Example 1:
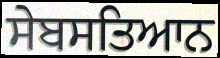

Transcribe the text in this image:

ਸੇਬਸਤਿਆਨ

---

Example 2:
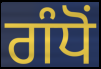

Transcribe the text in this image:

ਗੰਧੋਂ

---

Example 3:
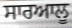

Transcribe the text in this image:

ਸਾਰਆਲੂ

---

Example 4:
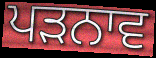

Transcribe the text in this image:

ਪੜਨਾਵ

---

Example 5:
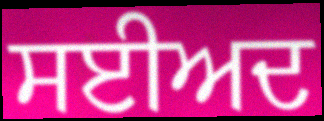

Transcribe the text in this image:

ਸਈਅਦ